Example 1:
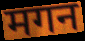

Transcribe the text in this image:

मगन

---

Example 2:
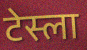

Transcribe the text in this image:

टेस्ला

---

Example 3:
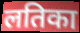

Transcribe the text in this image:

लतिका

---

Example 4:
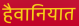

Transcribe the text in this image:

हैवानियात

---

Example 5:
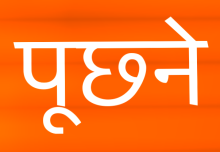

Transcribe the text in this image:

पूछ्ने